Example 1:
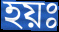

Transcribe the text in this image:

হয়ঃ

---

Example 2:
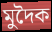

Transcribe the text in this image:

মুদৈক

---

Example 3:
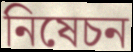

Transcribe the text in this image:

নিষেচন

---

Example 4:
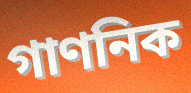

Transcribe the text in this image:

গাণনিক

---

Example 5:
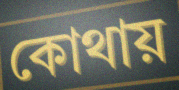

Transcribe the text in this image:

কোথায়